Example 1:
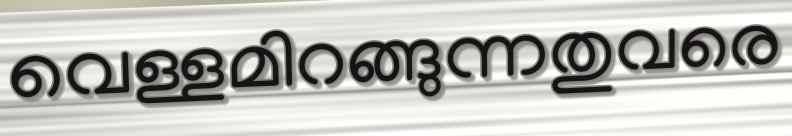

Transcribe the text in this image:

വെള്ളമിറങ്ങുന്നതുവരെ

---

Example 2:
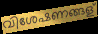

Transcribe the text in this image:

വിശേഷണങ്ങള്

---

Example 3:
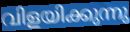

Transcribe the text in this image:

വിളയിക്കുന്നു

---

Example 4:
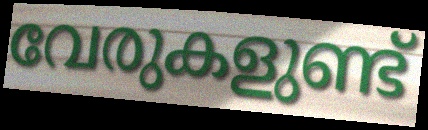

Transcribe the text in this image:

വേരുകളുണ്ട്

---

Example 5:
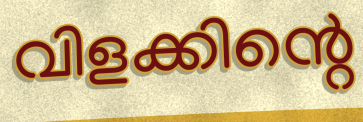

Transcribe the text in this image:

വിളക്കിന്റെ